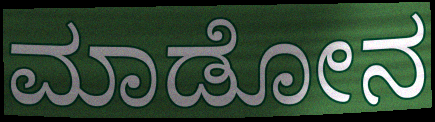
ಮಾಡೋನ